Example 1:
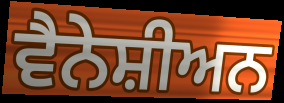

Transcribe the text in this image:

ਵੈਨੇਸ਼ੀਅਨ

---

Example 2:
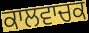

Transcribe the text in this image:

ਕਾਲਵਾਚਕ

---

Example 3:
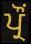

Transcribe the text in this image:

ਪ੍ਰੌਂ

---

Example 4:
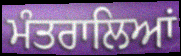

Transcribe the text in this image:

ਮੰਤਰਾਲਿਆਂ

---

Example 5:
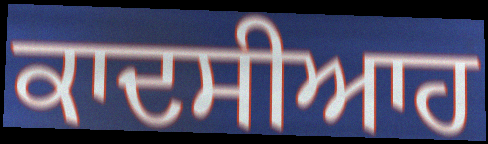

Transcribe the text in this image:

ਕਾਦਸੀਆਹ